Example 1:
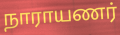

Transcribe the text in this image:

நாராயணர்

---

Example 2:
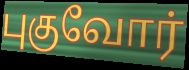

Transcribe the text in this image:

புகுவோர்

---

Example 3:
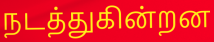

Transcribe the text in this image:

நடத்துகின்றன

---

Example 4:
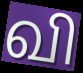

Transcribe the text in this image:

வி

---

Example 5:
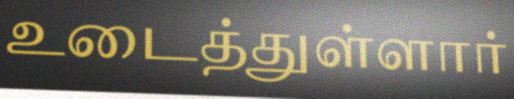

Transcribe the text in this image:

உடைத்துள்ளார்